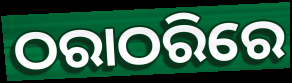
ଠରାଠରିରେ